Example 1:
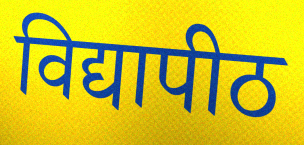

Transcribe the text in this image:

विद्यापीठ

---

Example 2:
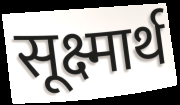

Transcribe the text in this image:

सूक्ष्मार्थ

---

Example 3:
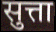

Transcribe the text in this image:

सुत्ता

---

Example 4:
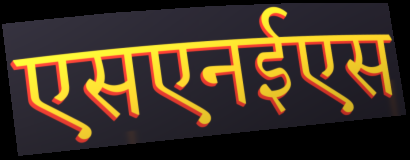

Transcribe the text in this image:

एसएनईएस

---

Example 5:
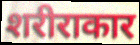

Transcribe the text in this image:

शरीराकार